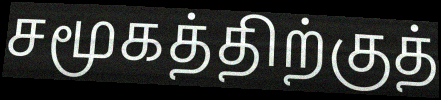
சமூகத்திற்குத்